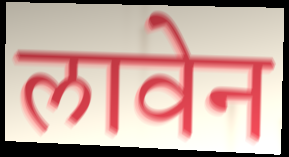
लावेन